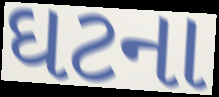
ઘટના